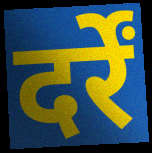
दर्रें